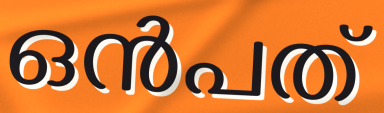
ഒൻപത്